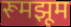
रूमझूम